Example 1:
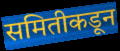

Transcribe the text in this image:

समितीकडून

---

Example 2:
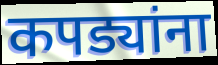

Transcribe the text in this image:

कपड्यांना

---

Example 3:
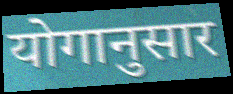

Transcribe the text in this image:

योगानुसार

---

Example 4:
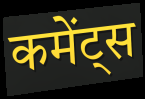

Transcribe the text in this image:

कमेंट्स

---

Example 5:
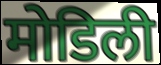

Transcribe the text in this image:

मोडिली